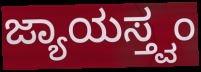
ಜ್ಯಾಯಸ್ತ್ವಂ